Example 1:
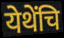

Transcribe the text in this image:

येथेंचि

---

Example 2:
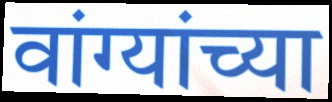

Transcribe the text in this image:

वांग्यांच्या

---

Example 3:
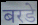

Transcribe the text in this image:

बरडे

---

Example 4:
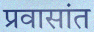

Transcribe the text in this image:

प्रवासांत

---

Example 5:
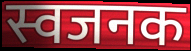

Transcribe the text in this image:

स्वजनक